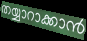
തയ്യാറാക്കാൻ